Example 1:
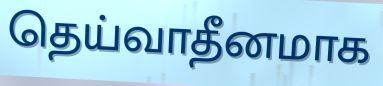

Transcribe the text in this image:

தெய்வாதீனமாக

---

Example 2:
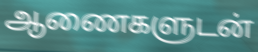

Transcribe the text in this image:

ஆணைகளுடன்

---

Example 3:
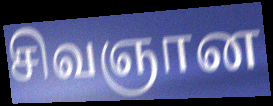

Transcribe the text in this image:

சிவஞான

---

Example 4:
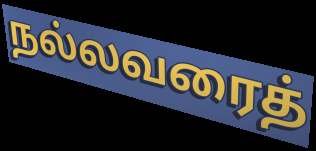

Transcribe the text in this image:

நல்லவரைத்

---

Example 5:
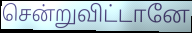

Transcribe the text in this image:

சென்றுவிட்டானே